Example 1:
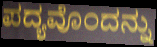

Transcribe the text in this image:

ಪದ್ಯವೊಂದನ್ನು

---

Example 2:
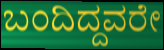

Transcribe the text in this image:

ಬಂದಿದ್ದವರೇ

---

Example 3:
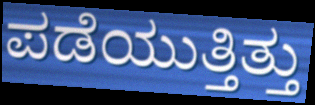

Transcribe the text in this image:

ಪಡೆಯುತ್ತಿತ್ತು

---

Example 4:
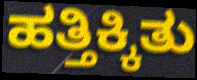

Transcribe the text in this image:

ಹತ್ತಿಕ್ಕಿತು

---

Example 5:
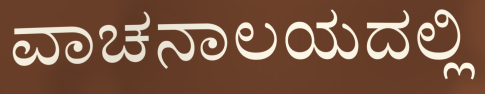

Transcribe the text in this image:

ವಾಚನಾಲಯದಲ್ಲಿ